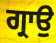
ਗ੍ਰਾਉ